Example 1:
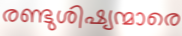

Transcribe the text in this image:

രണ്ടുശിഷ്യന്മാരെ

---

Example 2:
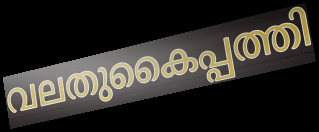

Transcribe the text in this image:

വലതുകൈപ്പത്തി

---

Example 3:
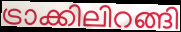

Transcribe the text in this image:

ട്രാക്കിലിറങ്ങി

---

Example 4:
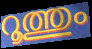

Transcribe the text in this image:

റൂത്തും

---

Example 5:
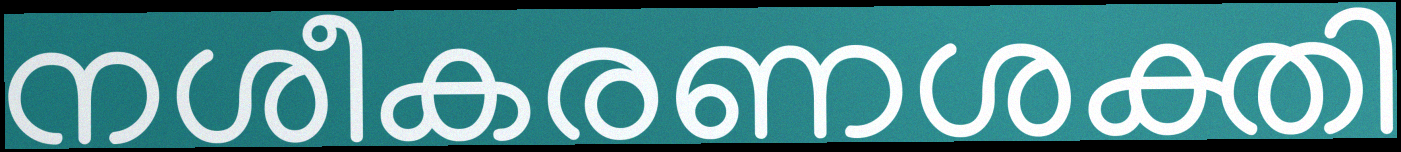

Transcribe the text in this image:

നശീകരണശക്തി